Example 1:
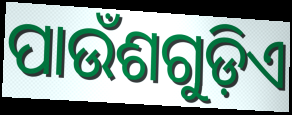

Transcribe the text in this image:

ପାଉଁଶଗୁଡ଼ିଏ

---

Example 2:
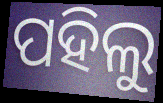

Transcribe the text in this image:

ପହିଲୁ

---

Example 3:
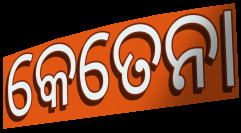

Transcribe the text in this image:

କେତେନା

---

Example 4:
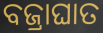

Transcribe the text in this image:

ବଜ୍ରାଘାତ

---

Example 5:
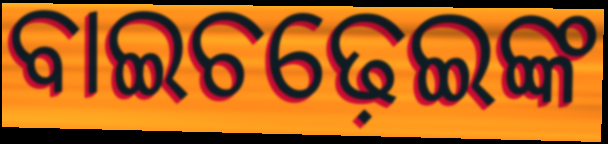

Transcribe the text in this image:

ବାଇଚଢ଼େଇଙ୍କ